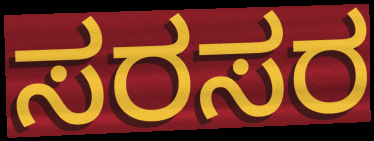
ಸರಸರ